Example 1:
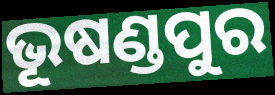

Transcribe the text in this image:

ଭୂଷଣ୍ଡପୁର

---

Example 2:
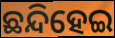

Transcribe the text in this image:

ଛନ୍ଦିହେଇ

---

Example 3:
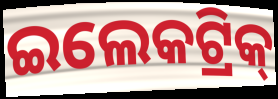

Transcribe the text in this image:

ଇଲେକଟ୍ରିକ୍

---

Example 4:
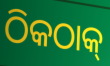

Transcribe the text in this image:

ଠିକଠାକ୍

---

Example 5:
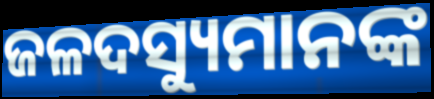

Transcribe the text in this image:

ଜଳଦସ୍ୟୁମାନଙ୍କ